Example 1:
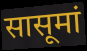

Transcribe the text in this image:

सासूमां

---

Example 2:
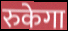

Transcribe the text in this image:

रुकेगा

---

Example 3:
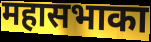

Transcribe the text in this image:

महासभाका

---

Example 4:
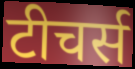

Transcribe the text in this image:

टीचर्स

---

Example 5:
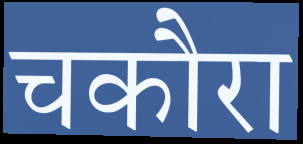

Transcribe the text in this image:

चकौरा